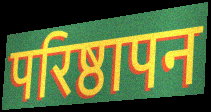
परिष्ठापन